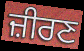
ਜ਼ੀਰਣ